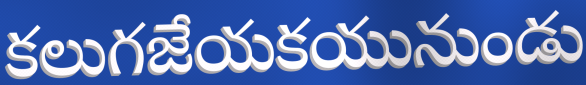
కలుగజేయకయునుండు